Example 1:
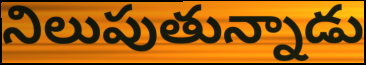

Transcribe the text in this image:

నిలుపుతున్నాడు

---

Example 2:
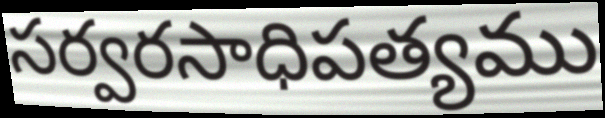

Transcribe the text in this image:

సర్వరసాధిపత్యము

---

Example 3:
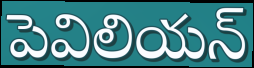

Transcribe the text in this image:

పెవిలియన్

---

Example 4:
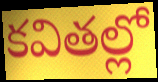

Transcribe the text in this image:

కవితల్లో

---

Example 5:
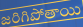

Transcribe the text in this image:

జరిగిపోతాయి